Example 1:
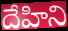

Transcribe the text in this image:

దేహిని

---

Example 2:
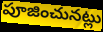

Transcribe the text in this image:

పూజించునట్లు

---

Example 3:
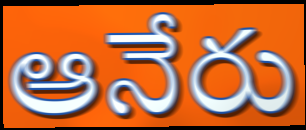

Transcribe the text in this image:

ఆనేరు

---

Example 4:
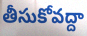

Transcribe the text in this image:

తీసుకోవద్దా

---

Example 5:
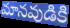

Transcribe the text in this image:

మానవుడికి